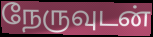
நேருவுடன்